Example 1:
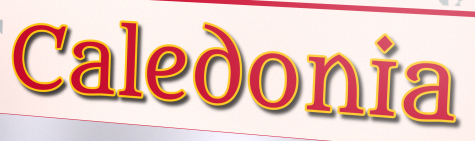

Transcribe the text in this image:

Caledonia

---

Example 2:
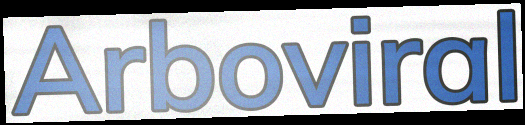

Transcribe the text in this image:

Arboviral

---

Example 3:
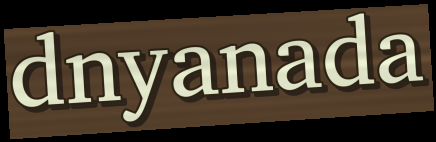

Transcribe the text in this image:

dnyanada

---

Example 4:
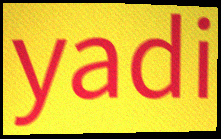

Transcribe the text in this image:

yadi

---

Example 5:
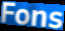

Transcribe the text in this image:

Fons